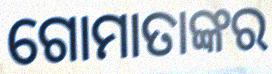
ଗୋମାତାଙ୍କର